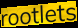
rootlets